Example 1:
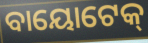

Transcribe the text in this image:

ବାୟୋଟେକ୍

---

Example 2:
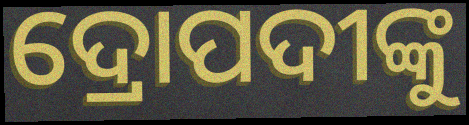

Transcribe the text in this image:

ଦ୍ରୋପଦୀଙ୍କୁ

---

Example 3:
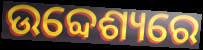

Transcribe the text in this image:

ଉବ୍ଦେଶ୍ୟରେ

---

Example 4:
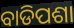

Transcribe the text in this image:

ବାଡିପଶା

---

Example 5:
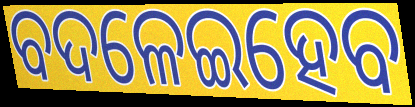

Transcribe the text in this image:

ବଦଳେଇହେବ